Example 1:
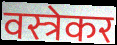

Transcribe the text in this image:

वस्त्रेकर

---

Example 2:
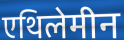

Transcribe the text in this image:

एथिलेमीन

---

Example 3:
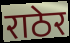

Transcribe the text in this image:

राठेर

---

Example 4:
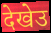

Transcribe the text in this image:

देखेउ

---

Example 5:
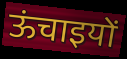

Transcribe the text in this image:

ऊंचाइयों